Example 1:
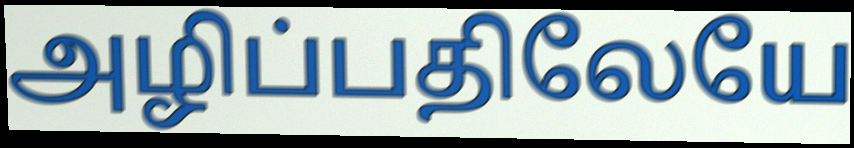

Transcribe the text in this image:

அழிப்பதிலேயே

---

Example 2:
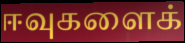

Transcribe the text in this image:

ஈவுகளைக்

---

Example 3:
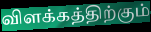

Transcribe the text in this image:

விளக்கத்திற்கும்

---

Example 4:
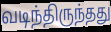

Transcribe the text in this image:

வடிந்திருந்தது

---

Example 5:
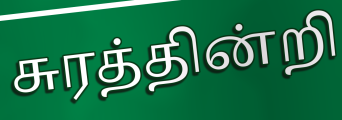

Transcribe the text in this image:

சுரத்தின்றி